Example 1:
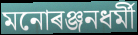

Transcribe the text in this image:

মনোৰঞ্জনধৰ্মী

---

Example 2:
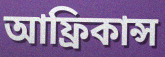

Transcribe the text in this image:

আফ্ৰিকান্স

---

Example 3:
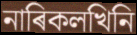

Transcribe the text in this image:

নাৰিকলখিনি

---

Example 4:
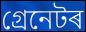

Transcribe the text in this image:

গ্ৰেনেটৰ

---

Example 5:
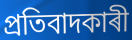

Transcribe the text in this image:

প্ৰতিবাদকাৰী